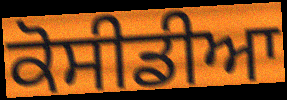
ਕੋਸੀਡੀਆ